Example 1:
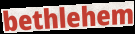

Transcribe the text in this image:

bethlehem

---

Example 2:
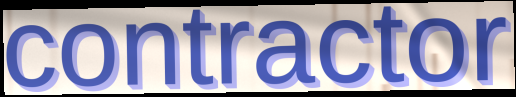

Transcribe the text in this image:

contractor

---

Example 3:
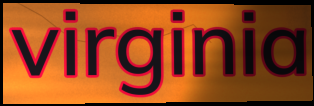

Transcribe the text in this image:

virginia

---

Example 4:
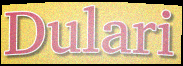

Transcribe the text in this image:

Dulari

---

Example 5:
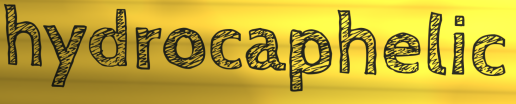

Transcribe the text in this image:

hydrocaphelic